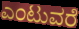
ಎಂಟುವರೆ